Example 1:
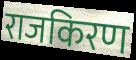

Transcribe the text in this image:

राजकिरण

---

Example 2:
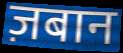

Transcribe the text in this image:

ज़बान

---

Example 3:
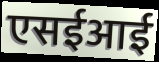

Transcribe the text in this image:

एसईआई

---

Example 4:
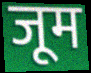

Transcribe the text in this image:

जूम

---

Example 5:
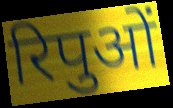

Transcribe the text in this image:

रिपुओं